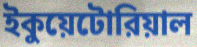
ইকুয়েটোরিয়াল